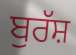
ਬੁਰੱਸ਼